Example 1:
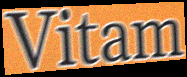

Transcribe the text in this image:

Vitam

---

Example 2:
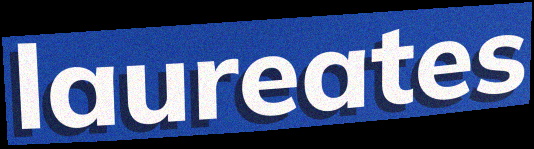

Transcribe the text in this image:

laureates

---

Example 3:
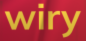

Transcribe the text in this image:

wiry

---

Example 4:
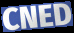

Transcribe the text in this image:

CNED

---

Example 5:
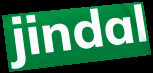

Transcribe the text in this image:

jindal